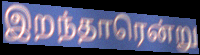
இறந்தாரென்று